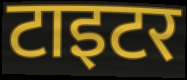
टाइटर